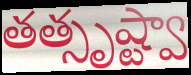
తత్సృష్ట్వా